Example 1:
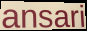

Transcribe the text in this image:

ansari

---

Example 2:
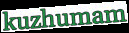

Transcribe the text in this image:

kuzhumam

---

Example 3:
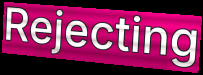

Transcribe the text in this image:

Rejecting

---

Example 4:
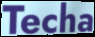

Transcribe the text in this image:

Techa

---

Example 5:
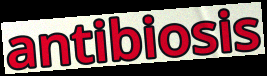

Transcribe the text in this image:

antibiosis